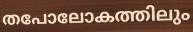
തപോലോകത്തിലും